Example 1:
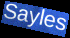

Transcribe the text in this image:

Sayles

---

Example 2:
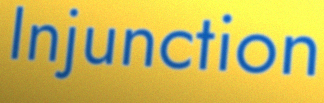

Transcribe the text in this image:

Injunction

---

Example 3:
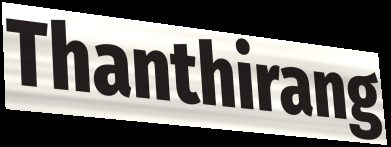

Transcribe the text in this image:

Thanthirang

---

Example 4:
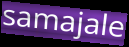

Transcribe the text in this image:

samajale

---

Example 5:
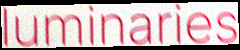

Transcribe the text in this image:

luminaries